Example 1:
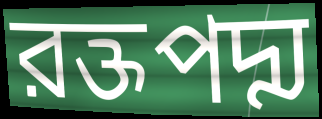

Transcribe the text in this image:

রক্তপদ্ম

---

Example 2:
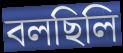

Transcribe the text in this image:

বলছিলি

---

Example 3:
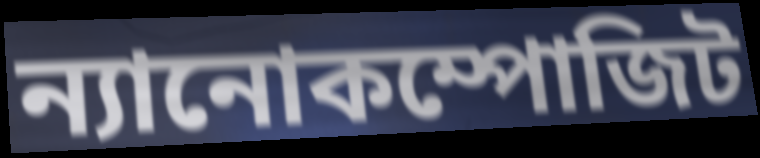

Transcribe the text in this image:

ন্যানোকম্পোজিট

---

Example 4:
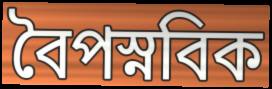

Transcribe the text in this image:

বৈপস্নবিক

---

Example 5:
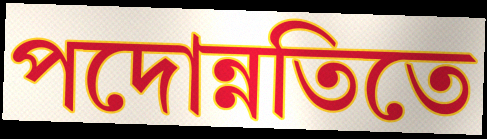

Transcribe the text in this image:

পদোন্নতিতে